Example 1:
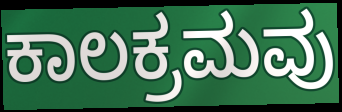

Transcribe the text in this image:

ಕಾಲಕ್ರಮವು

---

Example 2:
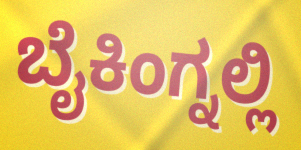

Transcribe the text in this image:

ಬೈಕಿಂಗ್ನಲ್ಲಿ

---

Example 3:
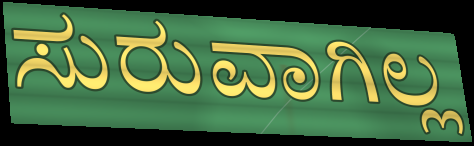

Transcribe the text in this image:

ಸುರುವಾಗಿಲ್ಲ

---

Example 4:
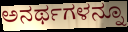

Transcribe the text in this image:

ಅನರ್ಥಗಳನ್ನೂ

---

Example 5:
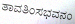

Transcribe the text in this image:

ತಾವತಿಂಸಭವನಂ